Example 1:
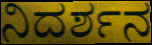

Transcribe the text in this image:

ನಿದರ್ಶನ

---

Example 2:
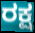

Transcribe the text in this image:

ರಕ್ಷ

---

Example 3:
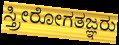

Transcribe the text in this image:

ಸ್ತ್ರೀರೋಗತಜ್ಞರು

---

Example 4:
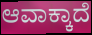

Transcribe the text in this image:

ಆವಾಕ್ಕಾದೆ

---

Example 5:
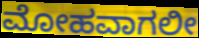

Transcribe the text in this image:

ಮೋಹವಾಗಲೀ